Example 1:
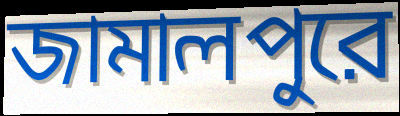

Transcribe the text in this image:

জামালপুরে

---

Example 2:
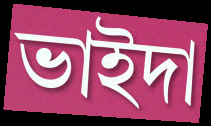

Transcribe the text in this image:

ভাইদা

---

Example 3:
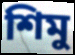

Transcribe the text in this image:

শিমু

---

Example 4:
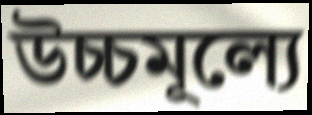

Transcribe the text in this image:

উচ্চমূল্যে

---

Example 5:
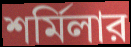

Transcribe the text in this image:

শর্মিলার